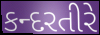
કન્દરતીરે